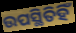
ଉପସ୍ଥିତିହିଁ